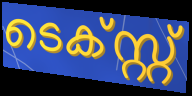
ടെക്സ്റ്റ്